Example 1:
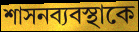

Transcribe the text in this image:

শাসনব্যবস্থাকে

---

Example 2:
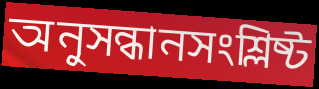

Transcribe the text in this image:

অনুসন্ধানসংশ্লিষ্ট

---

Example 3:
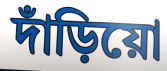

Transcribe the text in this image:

দাঁড়িয়ো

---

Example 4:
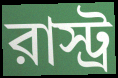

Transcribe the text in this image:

রাস্ট্র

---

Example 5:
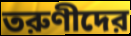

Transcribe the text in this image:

তরুণীদের